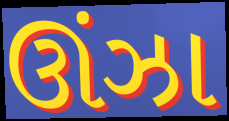
ઊંઝા